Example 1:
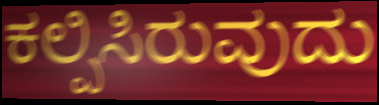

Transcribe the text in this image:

ಕಲ್ಪಿಸಿರುವುದು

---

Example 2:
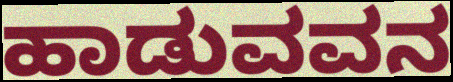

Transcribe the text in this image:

ಹಾಡುವವನ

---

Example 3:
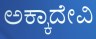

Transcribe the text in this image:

ಅಕ್ಕಾದೇವಿ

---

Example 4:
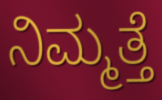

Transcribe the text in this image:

ನಿಮ್ಮತ್ತೆ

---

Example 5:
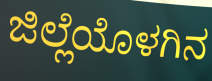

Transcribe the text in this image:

ಜಿಲ್ಲೆಯೊಳಗಿನ